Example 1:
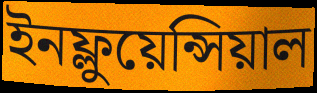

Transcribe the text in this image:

ইনফ্লুয়েন্সিয়াল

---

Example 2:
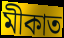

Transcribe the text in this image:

মীকাত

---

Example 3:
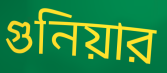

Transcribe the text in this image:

গুনিয়ার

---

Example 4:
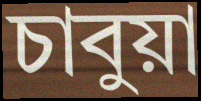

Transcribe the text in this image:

চাবুয়া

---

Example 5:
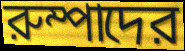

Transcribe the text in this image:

রুম্পাদের